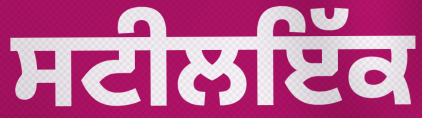
ਸਟੀਲਇੱਕ